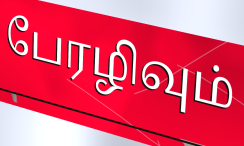
பேரழிவும்